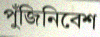
পুঁজিনিবেশ